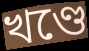
খণ্ডে